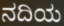
ನದಿಯ